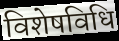
विशेषविधि